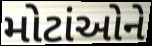
મોટાંઓને